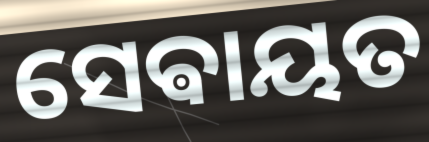
ସେଵାୟତ